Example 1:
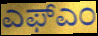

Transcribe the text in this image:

ಎಫ್ಎಂ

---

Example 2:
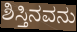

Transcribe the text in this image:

ಶಿಸ್ತಿನವನು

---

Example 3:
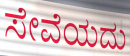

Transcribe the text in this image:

ಸೇವೆಯದು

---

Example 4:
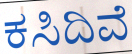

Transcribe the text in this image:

ಕಸಿದಿವೆ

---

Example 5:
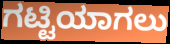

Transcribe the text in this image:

ಗಟ್ಟಿಯಾಗಲು